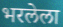
भरलेला